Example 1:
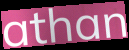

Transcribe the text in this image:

athan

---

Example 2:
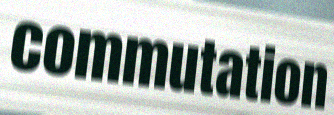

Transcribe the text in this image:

commutation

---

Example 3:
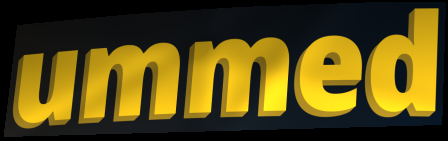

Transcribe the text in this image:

ummed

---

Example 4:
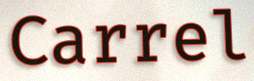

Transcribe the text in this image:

Carrel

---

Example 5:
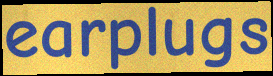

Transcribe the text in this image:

earplugs